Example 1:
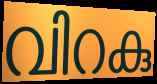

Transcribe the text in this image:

വിറകു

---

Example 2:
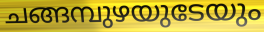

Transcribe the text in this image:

ചങ്ങമ്പുഴയുടേയും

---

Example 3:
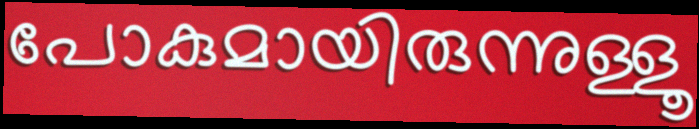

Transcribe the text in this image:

പോകുമായിരുന്നുള്ളൂ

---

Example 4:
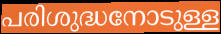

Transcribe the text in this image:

പരിശുദ്ധനോടുള്ള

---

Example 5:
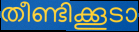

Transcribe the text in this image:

തീണ്ടിക്കൂടാ